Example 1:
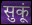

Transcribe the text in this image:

सुकूं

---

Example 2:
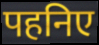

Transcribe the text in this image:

पहनिए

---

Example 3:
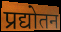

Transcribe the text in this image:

प्रद्योतन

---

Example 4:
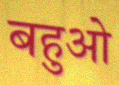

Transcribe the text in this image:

बहुओ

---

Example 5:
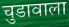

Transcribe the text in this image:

चुडावाला